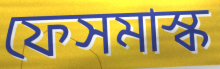
ফেসমাস্ক